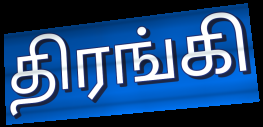
திரங்கி